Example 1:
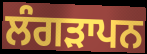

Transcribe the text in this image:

ਲੰਗੜਾਪਨ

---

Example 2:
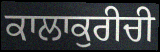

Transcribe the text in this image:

ਕਾਲਾਕੁਰੀਚੀ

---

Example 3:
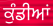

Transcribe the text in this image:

ਕੁੰਡੀਆਂ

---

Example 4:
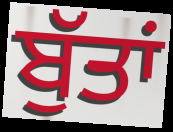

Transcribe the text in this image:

ਬੁੱਤਾਂ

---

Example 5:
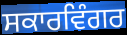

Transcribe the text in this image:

ਸਕਾਰਵਿੰਗਰ